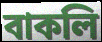
বাকলি